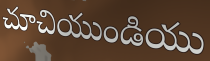
చూచియుండియు